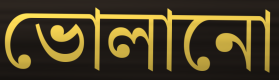
ভোলানো